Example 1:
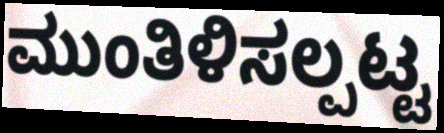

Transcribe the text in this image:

ಮುಂತಿಳಿಸಲ್ಪಟ್ಟ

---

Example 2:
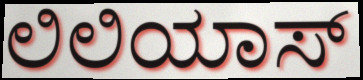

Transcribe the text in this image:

ಲಿಲಿಯಾಸ್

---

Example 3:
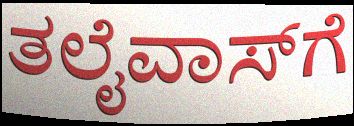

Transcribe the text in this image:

ತಲೈವಾಸ್‌ಗೆ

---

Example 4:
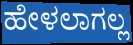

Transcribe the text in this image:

ಹೇಳಲಾಗಲ್ಲ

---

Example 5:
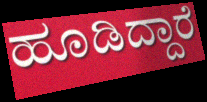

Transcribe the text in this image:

ಹೂಡಿದ್ದಾರೆ